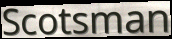
Scotsman